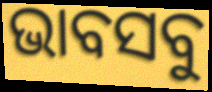
ଭାବସବୁ